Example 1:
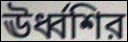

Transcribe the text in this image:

ঊর্ধ্বশির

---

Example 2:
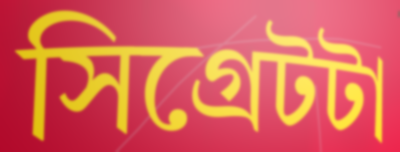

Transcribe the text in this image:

সিগ্রেটটা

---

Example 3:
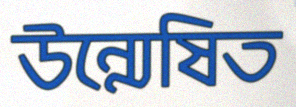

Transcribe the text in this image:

উন্মেষিত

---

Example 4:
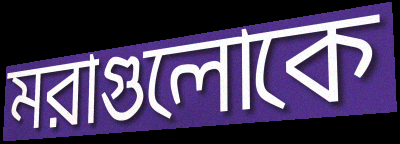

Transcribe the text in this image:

মরাগুলোকে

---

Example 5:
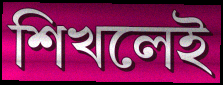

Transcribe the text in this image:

শিখলেই